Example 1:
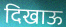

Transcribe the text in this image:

दिखाऊ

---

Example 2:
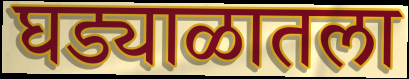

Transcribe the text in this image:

घड्याळातला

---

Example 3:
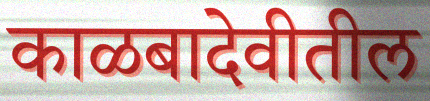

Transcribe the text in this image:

काळबादेवीतील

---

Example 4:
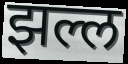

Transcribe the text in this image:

झल्ल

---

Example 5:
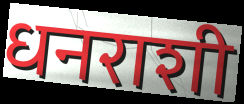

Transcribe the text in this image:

धनराशी